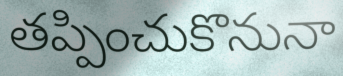
తప్పించుకొనునా